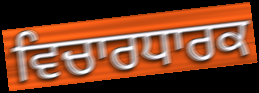
ਵਿਚਾਰਧਾਰਕ